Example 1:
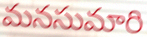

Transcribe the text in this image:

మనసుమారి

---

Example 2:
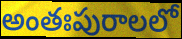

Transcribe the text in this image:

అంతఃపురాలలో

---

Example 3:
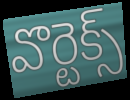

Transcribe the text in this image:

వొర్టెక్స్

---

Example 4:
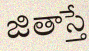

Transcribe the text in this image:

జితాస్తే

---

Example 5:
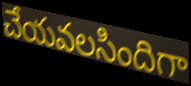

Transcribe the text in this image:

చేయవలసిందిగా